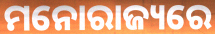
ମନୋରାଜ୍ୟରେ